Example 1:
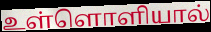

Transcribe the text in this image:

உள்ளொளியால்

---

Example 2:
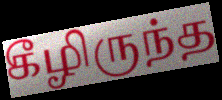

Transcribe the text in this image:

கீழிருந்த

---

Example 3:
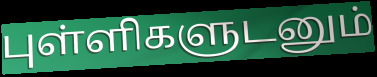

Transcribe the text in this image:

புள்ளிகளுடனும்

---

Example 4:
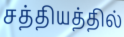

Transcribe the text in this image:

சத்தியத்தில்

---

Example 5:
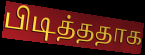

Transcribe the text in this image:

பிடித்ததாக